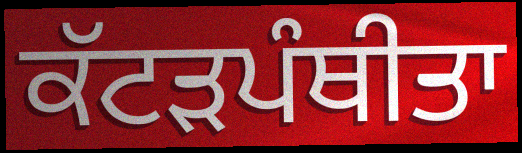
ਕੱਟੜਪੰਥੀਤਾ